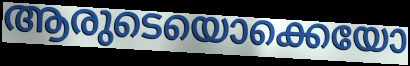
ആരുടെയൊക്കെയോ